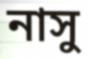
নাসু